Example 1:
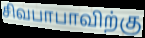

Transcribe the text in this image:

சிவபாபாவிற்கு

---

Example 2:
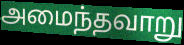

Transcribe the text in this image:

அமைந்தவாறு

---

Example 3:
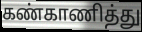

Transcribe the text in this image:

கண்காணித்து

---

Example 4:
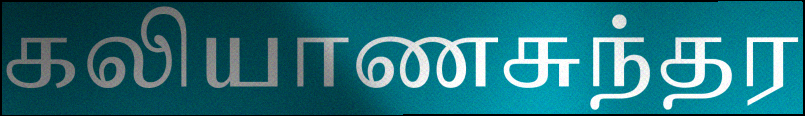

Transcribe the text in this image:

கலியாணசுந்தர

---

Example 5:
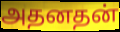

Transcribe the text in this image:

அதனதன்